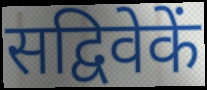
सद्विवेकें